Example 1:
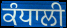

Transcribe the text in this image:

ਕੰਧਾਲੀ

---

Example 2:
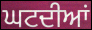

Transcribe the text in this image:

ਘਟਦੀਆਂ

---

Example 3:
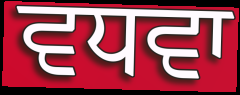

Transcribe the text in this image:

ਵਧਵਾ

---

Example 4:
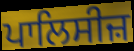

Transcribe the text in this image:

ਪਾਲਿਸੀਜ਼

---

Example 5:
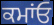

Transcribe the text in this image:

ਕਮਾਂਓ